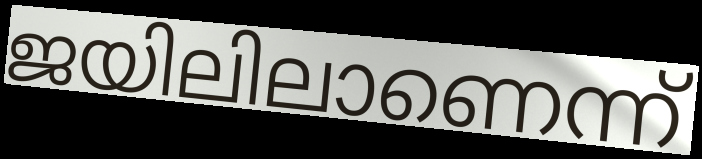
ജയിലിലാണെന്ന്